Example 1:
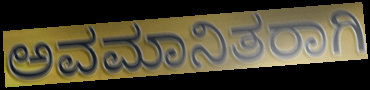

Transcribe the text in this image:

ಅವಮಾನಿತರಾಗಿ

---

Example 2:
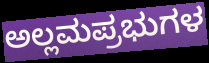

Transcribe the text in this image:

ಅಲ್ಲಮಪ್ರಭುಗಳ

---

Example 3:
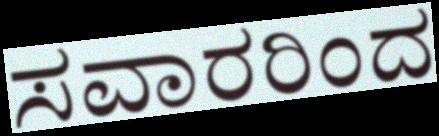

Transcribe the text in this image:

ಸವಾರರಿಂದ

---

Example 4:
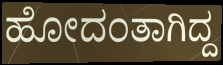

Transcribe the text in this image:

ಹೋದಂತಾಗಿದ್ದ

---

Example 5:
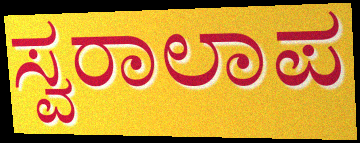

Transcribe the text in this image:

ಸ್ವರಾಲಾಪ